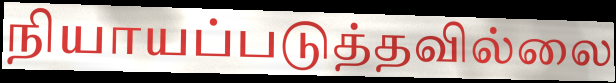
நியாயப்படுத்தவில்லை